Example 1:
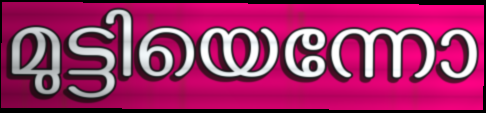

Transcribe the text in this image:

മുട്ടിയെന്നോ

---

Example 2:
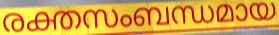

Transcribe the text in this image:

രക്തസംബന്ധമായ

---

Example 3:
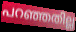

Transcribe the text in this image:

പറഞ്ഞതില്ല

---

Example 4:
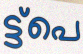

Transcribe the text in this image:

ട്ട്പെ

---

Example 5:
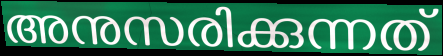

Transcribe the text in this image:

അനുസരിക്കുന്നത്